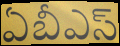
ఏబీఎస్